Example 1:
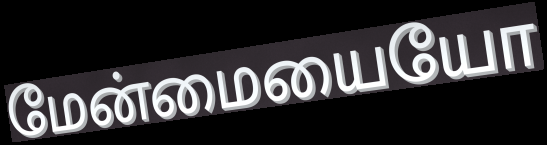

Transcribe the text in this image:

மேன்மையையோ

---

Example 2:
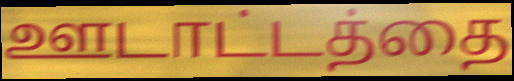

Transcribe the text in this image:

ஊடாட்டத்தை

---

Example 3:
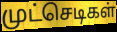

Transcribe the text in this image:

முட்செடிகள்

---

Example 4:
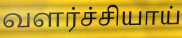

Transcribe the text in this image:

வளர்ச்சியாய்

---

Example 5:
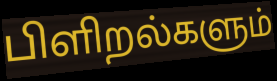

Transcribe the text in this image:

பிளிறல்களும்